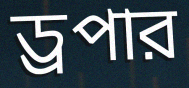
ড্রপার